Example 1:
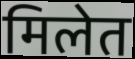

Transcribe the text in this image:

मिलेत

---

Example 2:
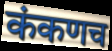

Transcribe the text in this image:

कंकणच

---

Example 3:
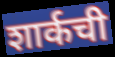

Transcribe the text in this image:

शार्कची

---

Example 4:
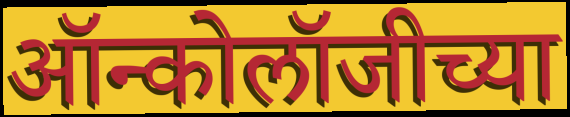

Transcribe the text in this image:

ऑन्कोलॉजीच्या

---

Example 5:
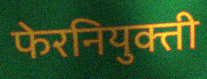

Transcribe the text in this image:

फेरनियुक्ती